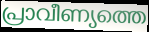
പ്രാവീണ്യത്തെ